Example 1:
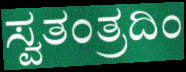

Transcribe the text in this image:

ಸ್ವತಂತ್ರದಿಂ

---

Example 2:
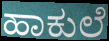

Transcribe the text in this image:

ಹಾಕುಲೆ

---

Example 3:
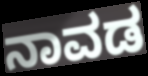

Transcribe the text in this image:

ನಾವಡ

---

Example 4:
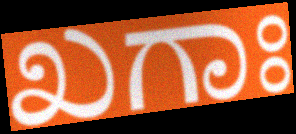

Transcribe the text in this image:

ಖಗಾಃ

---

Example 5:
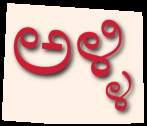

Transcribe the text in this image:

ಅಳ್ಳಿ